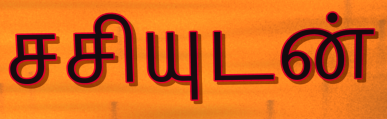
சசியுடன்